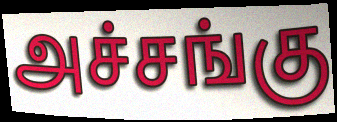
அச்சங்கு